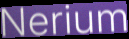
Nerium